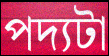
পদ্যটা